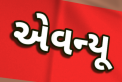
એવન્યૂ